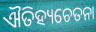
ଐତିହ୍ୟଚେତନା